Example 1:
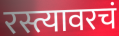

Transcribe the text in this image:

रस्त्यावरचं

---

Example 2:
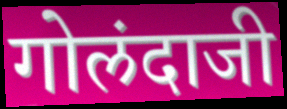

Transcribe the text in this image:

गोलंदाजी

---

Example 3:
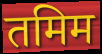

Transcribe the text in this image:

तमिम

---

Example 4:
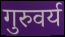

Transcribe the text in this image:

गुरुवर्य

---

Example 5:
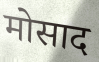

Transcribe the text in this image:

मोसाद